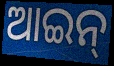
ଆଇନ୍